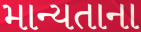
માન્યતાના